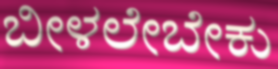
ಬೀಳಲೇಬೇಕು